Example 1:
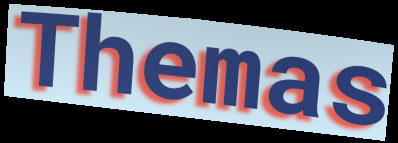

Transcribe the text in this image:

Themas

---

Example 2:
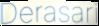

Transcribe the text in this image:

Derasari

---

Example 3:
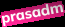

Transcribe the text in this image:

prasadm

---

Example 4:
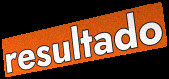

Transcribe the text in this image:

resultado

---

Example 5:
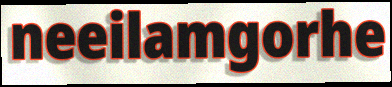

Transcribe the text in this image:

neeilamgorhe